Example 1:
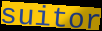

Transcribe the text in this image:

suitor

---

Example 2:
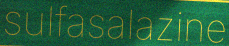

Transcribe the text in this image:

sulfasalazine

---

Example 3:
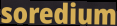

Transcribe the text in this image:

soredium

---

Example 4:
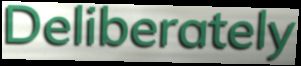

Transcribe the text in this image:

Deliberately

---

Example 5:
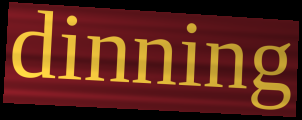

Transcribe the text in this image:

dinning